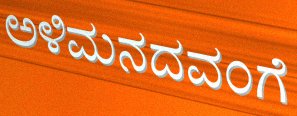
ಅಳಿಮನದವಂಗೆ